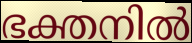
ഭക്തനിൽ